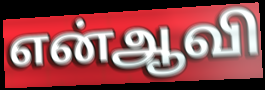
என்ஆவி